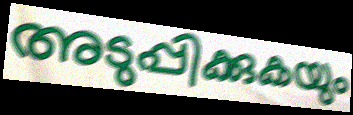
അടുപ്പിക്കുകയും